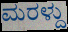
ಮರಳ್ದು